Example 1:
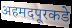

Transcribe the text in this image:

अहमदपूरकडे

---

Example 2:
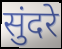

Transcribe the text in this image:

सुंदरे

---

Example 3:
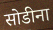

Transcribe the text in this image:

सोडीना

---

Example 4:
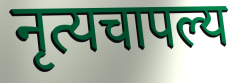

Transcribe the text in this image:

नृत्यचापल्य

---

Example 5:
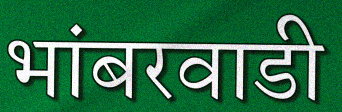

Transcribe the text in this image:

भांबरवाडी